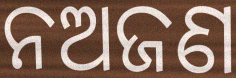
ନଅଜଣ